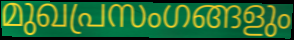
മുഖപ്രസംഗങ്ങളും